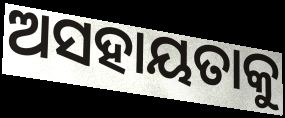
ଅସହାୟତାକୁ